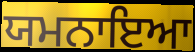
ਯਮਨਾਇਆ